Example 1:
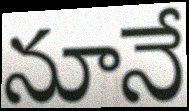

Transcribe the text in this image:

నూనే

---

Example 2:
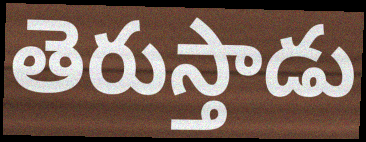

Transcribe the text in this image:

తెరుస్తాడు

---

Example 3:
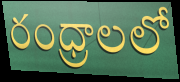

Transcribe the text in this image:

రంధ్రాలలో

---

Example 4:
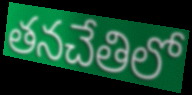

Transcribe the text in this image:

తనచేతిలో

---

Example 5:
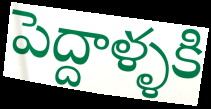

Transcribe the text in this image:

పెద్దాళ్ళకి